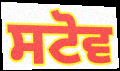
ਸਟੋਵ